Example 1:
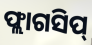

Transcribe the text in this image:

ଫ୍ଲାଗସିପ୍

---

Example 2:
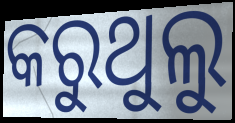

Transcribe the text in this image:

କରୁଥୁଲୁ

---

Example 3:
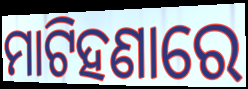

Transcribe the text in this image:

ମାଟିହଣାରେ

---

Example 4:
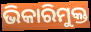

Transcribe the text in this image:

ଭିକାରିମୁକ୍ତ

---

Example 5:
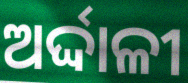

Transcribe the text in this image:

ଅର୍ଦ୍ଦାଳୀ